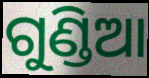
ଗୁଣ୍ଡିଆ